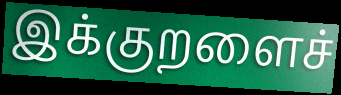
இக்குறளைச்